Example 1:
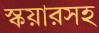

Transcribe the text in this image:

স্কয়ারসহ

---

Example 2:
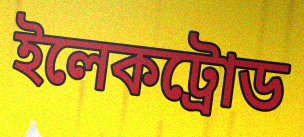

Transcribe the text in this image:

ইলেকট্রোড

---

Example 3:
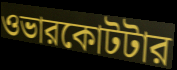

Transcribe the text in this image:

ওভারকোটটার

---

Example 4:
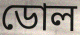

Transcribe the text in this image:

ডোল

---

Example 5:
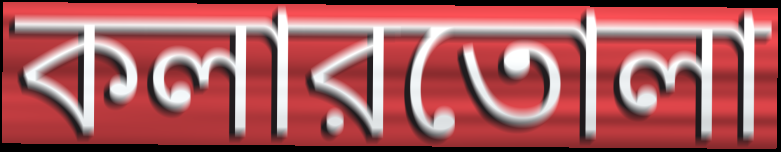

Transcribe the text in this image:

কলারতোলা